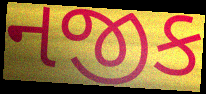
નજીક